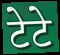
टेटे